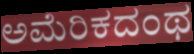
ಅಮೆರಿಕದಂಥ